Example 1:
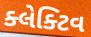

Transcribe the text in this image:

ક્લેક્ટિવ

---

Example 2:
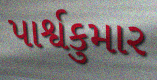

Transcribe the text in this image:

પાર્શ્વકુમાર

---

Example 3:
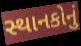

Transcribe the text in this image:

સ્થાનકોનું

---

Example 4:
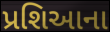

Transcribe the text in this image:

પ્રશિઆના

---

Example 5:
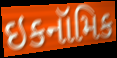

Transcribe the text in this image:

ઇકનૉમિક